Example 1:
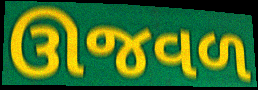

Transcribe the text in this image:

ઊજવળ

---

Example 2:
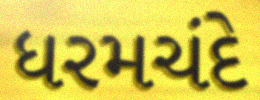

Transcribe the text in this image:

ધરમચંદે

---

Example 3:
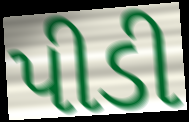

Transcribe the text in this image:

પીડી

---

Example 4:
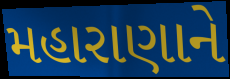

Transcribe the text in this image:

મહારાણાને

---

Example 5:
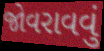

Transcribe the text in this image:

જોવરાવવું